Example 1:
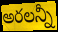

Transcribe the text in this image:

అరలన్నీ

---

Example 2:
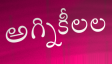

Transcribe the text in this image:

అగ్నికీలల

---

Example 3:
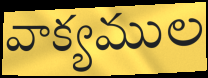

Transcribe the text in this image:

వాక్యముల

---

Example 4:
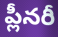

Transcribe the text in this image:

ప్లీనరీ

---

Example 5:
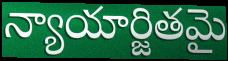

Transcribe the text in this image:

న్యాయార్జితమై